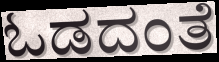
ಓಡದಂತೆ